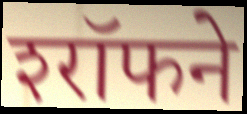
श्रॉफने